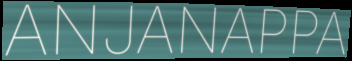
ANJANAPPA